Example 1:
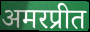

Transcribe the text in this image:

अमरप्रीत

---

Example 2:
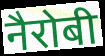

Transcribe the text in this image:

नैरोबी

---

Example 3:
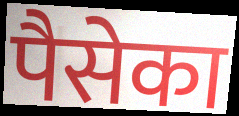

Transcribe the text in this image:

पैसेका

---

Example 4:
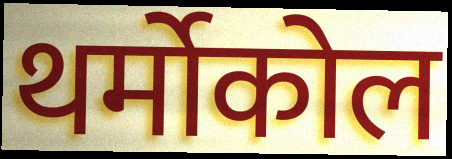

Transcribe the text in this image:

थर्मोकोल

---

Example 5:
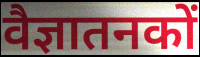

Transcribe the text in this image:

वैज्ञातनकों